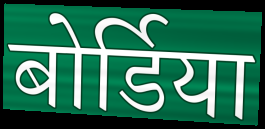
बोर्डिया